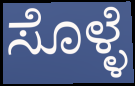
ಸೊಳ್ಳೆ